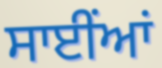
ਸਾਈਂਆਂ